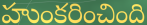
హుంకరించింది